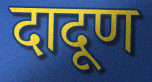
दादूण